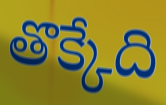
తొక్కేది